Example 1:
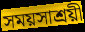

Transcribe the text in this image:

সময়সাশ্রয়ী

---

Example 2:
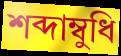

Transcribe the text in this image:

শব্দাম্বুধি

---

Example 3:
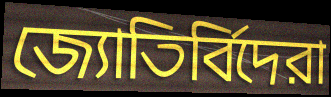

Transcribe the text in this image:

জ্যোতির্বিদেরা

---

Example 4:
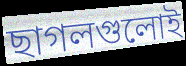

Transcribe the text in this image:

ছাগলগুলোই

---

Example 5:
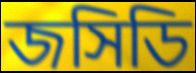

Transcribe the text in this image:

জসিডি